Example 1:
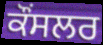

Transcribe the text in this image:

ਕੌੰਸਲਰ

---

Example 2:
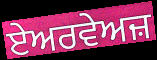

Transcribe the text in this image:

ਏਅਰਵੇਅਜ਼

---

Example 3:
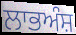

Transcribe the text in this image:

ਲਾਭਅੰਸ਼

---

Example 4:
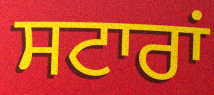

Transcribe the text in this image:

ਸਟਾਰਾਂ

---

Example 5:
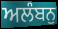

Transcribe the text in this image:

ਅਲੰਬਨੁ